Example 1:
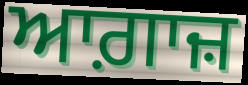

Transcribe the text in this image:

ਆਗ਼ਾਜ਼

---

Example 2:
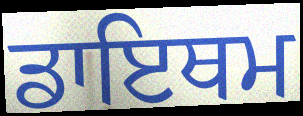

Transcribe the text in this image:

ਡਾਇਥਮ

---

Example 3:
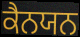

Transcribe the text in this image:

ਕੈਨਯਨ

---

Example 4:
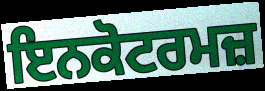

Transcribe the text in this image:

ਇਨਕੋਟਰਮਜ਼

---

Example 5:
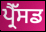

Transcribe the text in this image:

ਪ੍ਰੈੱਸਡ